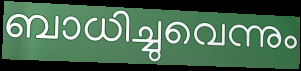
ബാധിച്ചുവെന്നും